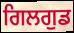
ਗਿਲਗੁਡ